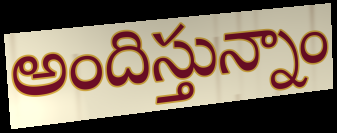
అందిస్తున్నాం